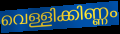
വെള്ളിക്കിണ്ണം